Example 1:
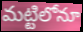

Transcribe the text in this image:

మట్టిలోనూ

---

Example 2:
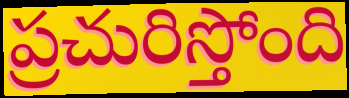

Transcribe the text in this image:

ప్రచురిస్తోంది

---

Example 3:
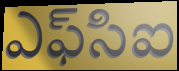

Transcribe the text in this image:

ఎఫ్‌సిఐ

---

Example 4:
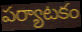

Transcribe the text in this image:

పర్యాటకం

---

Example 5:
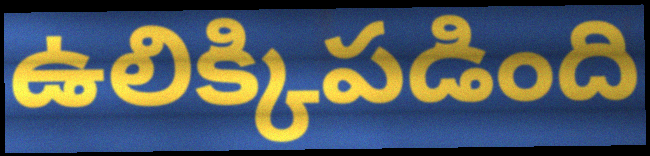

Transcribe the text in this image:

ఉలిక్కిపడింది